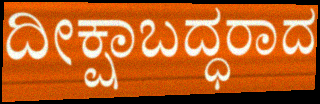
ದೀಕ್ಷಾಬದ್ಧರಾದ